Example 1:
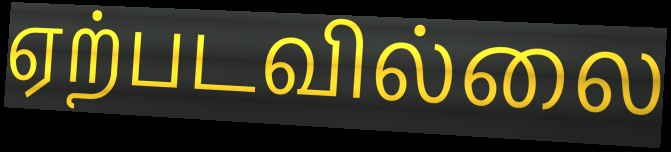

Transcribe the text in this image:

ஏற்படவில்லை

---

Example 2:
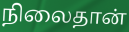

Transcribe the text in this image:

நிலைதான்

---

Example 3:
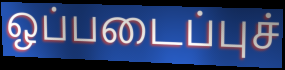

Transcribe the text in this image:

ஒப்படைப்புச்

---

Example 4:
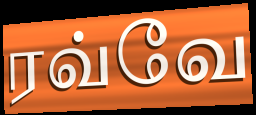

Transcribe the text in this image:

ரவ்வே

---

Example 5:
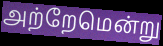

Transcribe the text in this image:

அற்றேமென்று